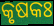
କୃଷକଃ